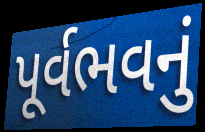
પૂર્વભવનું